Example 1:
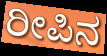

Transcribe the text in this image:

ರೀಪಿನ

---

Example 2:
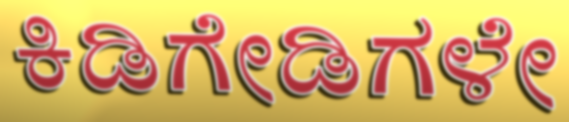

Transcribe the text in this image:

ಕಿಡಿಗೇಡಿಗಳೇ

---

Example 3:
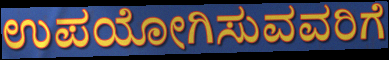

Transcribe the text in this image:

ಉಪಯೋಗಿಸುವವರಿಗೆ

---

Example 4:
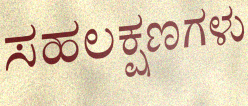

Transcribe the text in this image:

ಸಹಲಕ್ಷಣಗಳು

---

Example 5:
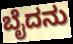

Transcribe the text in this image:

ಬೈದನು